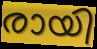
രായി